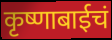
कृष्णाबाईचं